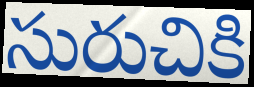
సురుచికి